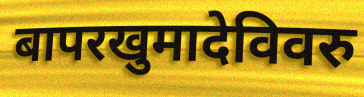
बापरखुमादेविवरु